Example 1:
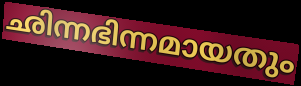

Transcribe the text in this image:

ഛിന്നഭിന്നമായതും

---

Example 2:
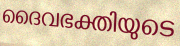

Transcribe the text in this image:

ദൈവഭക്തിയുടെ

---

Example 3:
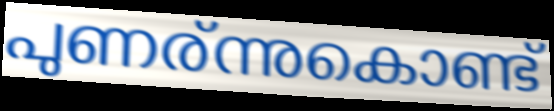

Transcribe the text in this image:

പുണര്ന്നുകൊണ്ട്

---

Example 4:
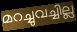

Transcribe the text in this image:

മറച്ചുവച്ചില്ല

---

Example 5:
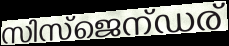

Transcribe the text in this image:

സിസ്ജെന്ഡര്